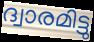
ദ്വാരമിട്ടു